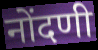
नोंदणी